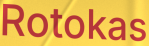
Rotokas